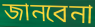
জানবেনা